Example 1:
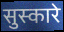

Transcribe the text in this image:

सुस्कारे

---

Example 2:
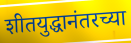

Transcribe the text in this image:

शीतयुद्धानंतरच्या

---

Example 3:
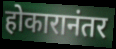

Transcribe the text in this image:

होकारानंतर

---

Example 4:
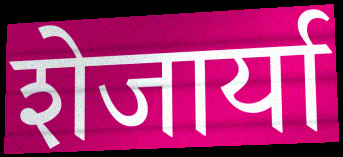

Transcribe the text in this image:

शेजार्या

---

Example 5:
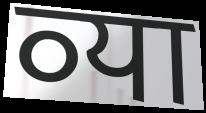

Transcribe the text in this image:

व्‍या